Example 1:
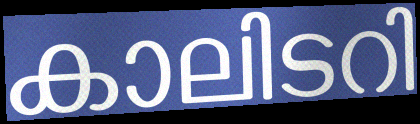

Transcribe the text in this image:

കാലിടറി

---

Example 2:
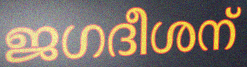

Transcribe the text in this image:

ജഗദീശന്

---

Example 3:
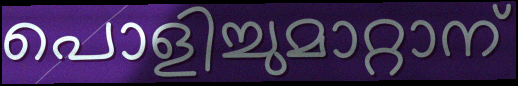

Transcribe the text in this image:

പൊളിച്ചുമാറ്റാന്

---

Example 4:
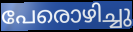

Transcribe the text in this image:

പേരൊഴിച്ചു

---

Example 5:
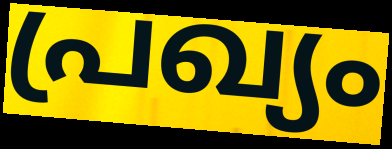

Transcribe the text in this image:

പ്രഖ്യം